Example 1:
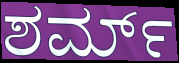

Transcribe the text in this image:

ಶರ್ಮ್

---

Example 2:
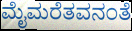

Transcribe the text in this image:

ಮೈಮರೆತವನಂತೆ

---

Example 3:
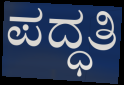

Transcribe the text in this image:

ಪದ್ಧತಿ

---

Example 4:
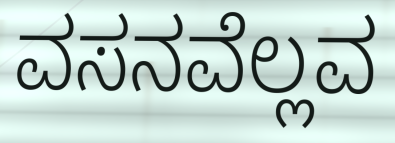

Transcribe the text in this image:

ವಸನವೆಲ್ಲವ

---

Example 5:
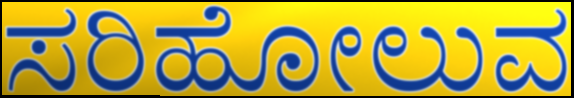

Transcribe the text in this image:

ಸರಿಹೋಲುವ